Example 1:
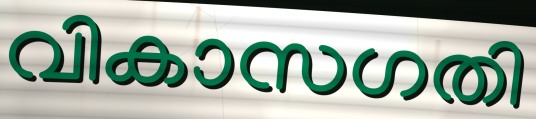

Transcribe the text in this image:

വികാസഗതി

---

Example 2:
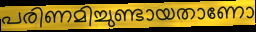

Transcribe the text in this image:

പരിണമിച്ചുണ്ടായതാണോ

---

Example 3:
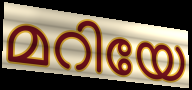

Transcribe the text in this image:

മറിയേ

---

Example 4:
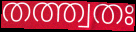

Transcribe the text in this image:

തത്ത്വതഃ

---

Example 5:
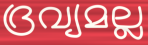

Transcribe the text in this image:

ദ്രവ്യമല്ല